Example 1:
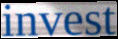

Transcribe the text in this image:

invest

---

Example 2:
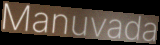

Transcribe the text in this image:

Manuvada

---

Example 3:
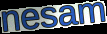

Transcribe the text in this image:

nesam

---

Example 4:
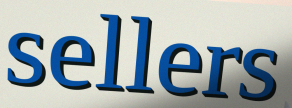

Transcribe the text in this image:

sellers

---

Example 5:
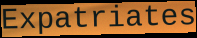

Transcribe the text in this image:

Expatriates